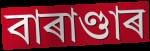
বাৰাণ্ডাৰ